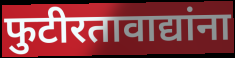
फुटीरतावाद्यांना